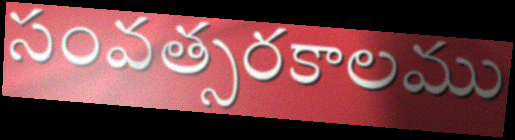
సంవత్సరకాలము